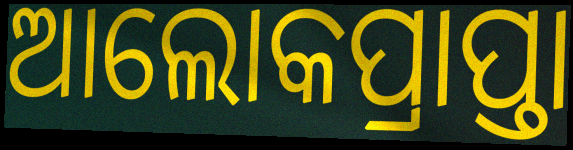
ଆଲୋକପ୍ରାପ୍ତା